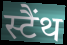
स्टैंथ